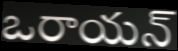
ఒరాయన్